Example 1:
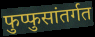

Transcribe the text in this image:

फुप्फुसांतर्गत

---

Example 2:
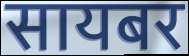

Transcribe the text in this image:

सायबर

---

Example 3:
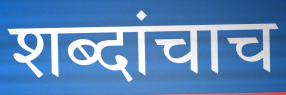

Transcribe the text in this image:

शब्दांचाच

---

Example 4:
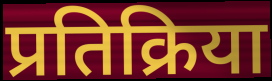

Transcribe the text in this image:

प्रतिक्रिया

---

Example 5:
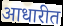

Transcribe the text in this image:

आधारीत